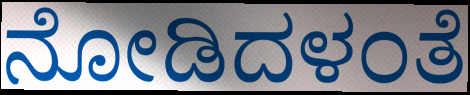
ನೋಡಿದಳಂತೆ